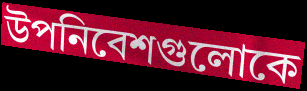
উপনিবেশগুলোকে